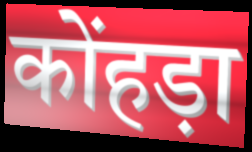
कोंहड़ा